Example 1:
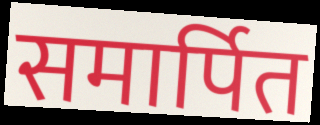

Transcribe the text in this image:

समार्पित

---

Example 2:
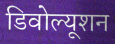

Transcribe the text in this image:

डिवोल्यूशन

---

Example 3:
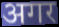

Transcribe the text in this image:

अगर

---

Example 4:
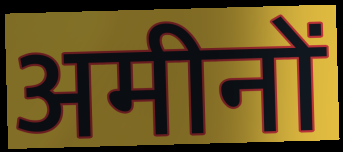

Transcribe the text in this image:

अमीनों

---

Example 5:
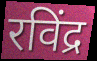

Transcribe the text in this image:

रविंद्र